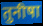
तुनीषा